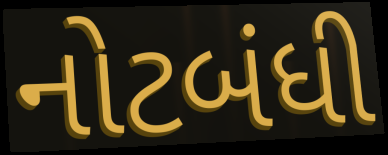
નોટબંધી